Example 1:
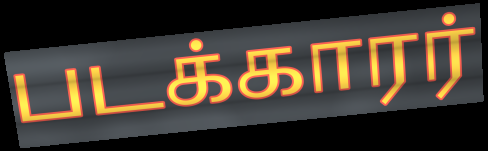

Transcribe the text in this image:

படக்காரர்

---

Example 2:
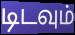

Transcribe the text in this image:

டிடவும்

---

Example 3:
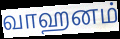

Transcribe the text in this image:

வாஹனம்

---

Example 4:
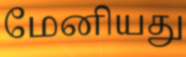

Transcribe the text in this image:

மேனியது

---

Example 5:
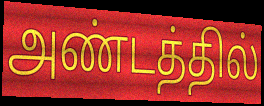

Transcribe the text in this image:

அண்டத்தில்